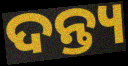
ଦନ୍ତ୍ୟ